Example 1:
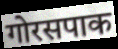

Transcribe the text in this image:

गोरसपाक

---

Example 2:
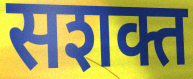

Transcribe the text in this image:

सशक्त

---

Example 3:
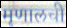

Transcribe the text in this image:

मृणालची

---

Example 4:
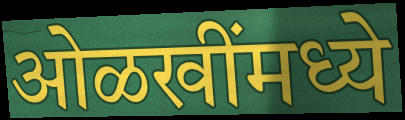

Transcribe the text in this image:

ओळखींमध्ये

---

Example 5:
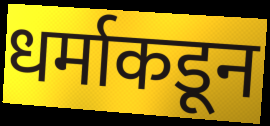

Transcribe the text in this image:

धर्माकडून